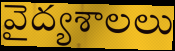
వైద్యశాలలు